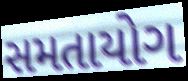
સમતાયોગ